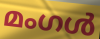
മംഗൾ